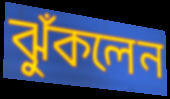
ঝুঁকলেন